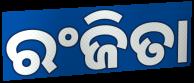
ରଂଜିତା